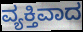
ವ್ಯಕ್ತಿವಾದ